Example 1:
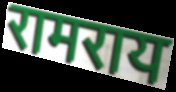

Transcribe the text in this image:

रामराय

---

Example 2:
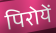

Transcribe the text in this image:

पिरोयें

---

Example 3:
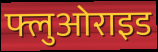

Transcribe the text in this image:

फ्लुओराइड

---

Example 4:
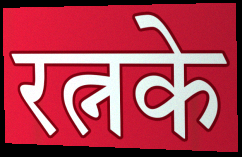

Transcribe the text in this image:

रत्नके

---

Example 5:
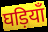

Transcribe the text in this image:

घड़ियाँ